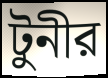
টুনীর